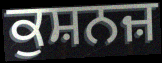
ਕੁਸ਼ਨਜ਼